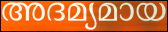
അദമ്യമായ